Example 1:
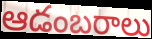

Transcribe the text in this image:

ఆడంబరాలు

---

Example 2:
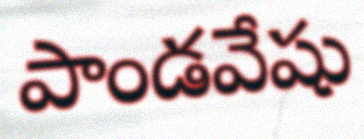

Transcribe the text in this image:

పాండవేషు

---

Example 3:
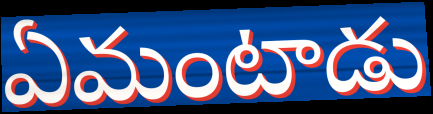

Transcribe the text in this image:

ఏమంటాడు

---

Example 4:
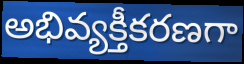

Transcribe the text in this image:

అభివ్యక్తీకరణగా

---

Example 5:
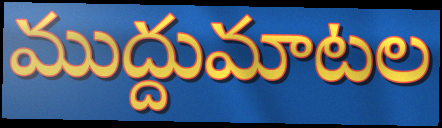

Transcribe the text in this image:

ముద్దుమాటల